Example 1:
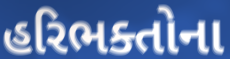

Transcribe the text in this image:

હરિભક્તોના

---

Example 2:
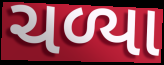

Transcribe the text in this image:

ચળ્યા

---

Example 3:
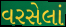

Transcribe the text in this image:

વરસેલાં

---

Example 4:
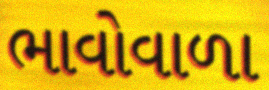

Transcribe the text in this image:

ભાવોવાળા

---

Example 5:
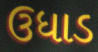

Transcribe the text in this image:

ઉધાડ